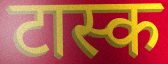
टास्क